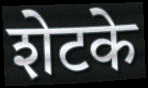
शेटके